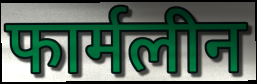
फार्मलीन